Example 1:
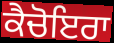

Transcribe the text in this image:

ਕੈਚੋਇਰਾ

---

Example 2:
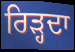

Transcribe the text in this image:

ਰਿੜ੍ਹਦਾ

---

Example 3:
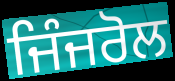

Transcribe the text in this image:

ਜਿੰਜਰੋਲ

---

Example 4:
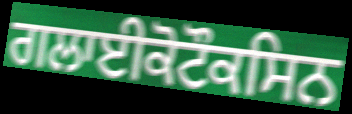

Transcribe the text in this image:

ਗਲਾਈਕੋਟੌਕਸਿਨ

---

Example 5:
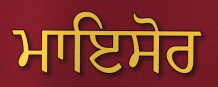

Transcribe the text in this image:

ਮਾਇਸੋਰ